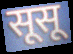
सूसू